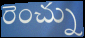
రెంచ్ను